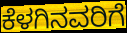
ಕೆಳಗಿನವರಿಗೆ